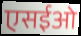
एसईओ